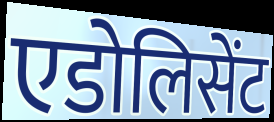
एडोलिसेंट